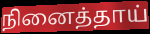
நினைத்தாய்